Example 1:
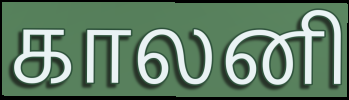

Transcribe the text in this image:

காலனி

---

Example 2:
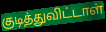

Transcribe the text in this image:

குடித்துவிட்டாள்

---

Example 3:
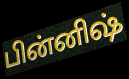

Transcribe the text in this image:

பின்னிஷ்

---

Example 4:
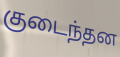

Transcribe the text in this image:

குடைந்தன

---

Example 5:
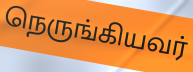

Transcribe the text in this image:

நெருங்கியவர்